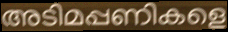
അടിമപ്പണികളെ